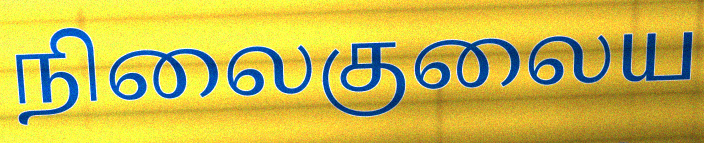
நிலைகுலைய